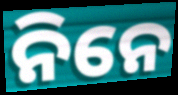
ନିନେ